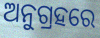
ଅନୁଗ୍ରହରେ